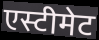
एस्टीमेट